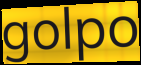
golpo